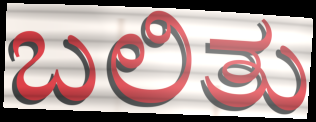
ಬಲಿತು